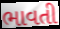
ભાવતી